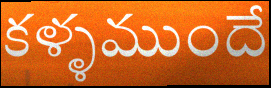
కళ్ళముందే